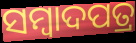
ସମ୍ବାଦପତ୍ର